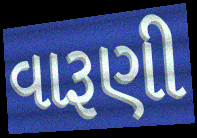
વારૂણી